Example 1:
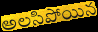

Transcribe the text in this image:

అలసిపోయిన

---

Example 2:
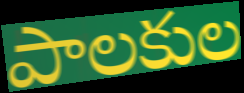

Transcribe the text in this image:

పాలకుల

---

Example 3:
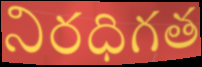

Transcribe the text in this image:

నిరధిగత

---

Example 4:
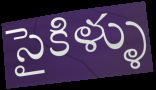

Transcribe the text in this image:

సైకిళ్ళు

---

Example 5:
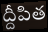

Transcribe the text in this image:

ద్దీపిత